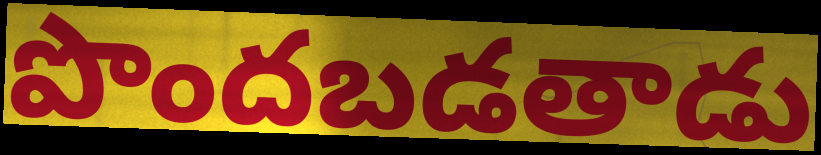
పొందబడతాడు